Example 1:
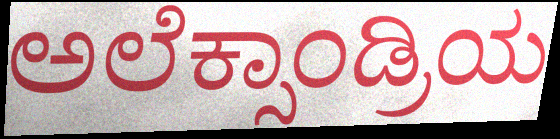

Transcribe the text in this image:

ಅಲೆಕ್ಸಾಂಡ್ರಿಯ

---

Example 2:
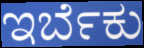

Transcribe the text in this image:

ಇರ್ಬೆಕು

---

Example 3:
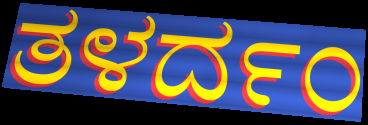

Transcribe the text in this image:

ತಳರ್ದಂ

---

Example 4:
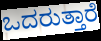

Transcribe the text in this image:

ಒದರುತ್ತಾರೆ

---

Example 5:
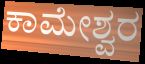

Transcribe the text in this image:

ಕಾಮೇಶ್ವರ